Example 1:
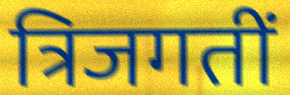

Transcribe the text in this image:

त्रिजगतीं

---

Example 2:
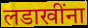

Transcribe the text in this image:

लडाखींना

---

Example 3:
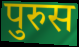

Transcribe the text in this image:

पुरुस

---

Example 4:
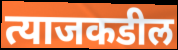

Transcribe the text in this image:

त्याजकडील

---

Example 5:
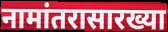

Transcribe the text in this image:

नामांतरासारख्या